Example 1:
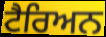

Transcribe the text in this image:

ਟੈਰਿਅਨ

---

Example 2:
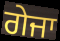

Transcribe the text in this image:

ਗੇਜਾ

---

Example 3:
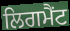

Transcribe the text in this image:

ਲਿਗਮੈਂਟ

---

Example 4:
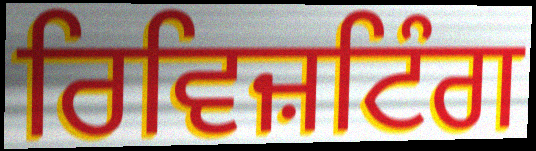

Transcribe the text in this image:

ਰਿਵਿਜ਼ਟਿੰਗ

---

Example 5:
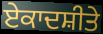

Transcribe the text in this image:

ਏਕਾਦਸ਼ੀਤੇ